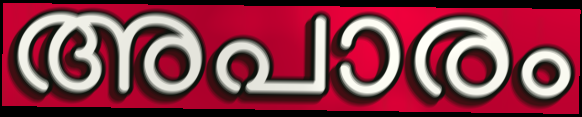
അപാരം